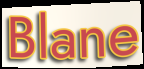
Blane